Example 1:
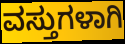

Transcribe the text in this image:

ವಸ್ತುಗಳಾಗಿ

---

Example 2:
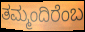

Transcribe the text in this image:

ತಮ್ಮಂದಿರೆಂಬ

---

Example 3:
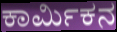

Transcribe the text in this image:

ಕಾರ್ಮಿಕನ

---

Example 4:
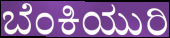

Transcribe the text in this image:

ಬೆಂಕಿಯುರಿ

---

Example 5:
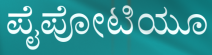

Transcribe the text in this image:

ಪೈಪೋಟಿಯೂ